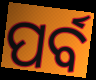
ପର୍ବ